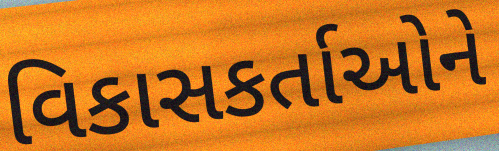
વિકાસકર્તાઓને